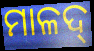
ମାଳଦ୍